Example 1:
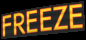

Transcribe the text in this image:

FREEZE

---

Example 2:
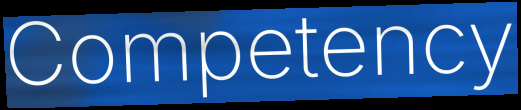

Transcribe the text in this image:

Competency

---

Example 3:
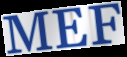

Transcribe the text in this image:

MEF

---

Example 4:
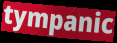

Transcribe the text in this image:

tympanic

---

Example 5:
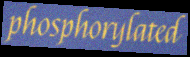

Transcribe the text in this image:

phosphorylated